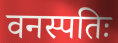
वनस्पतिः